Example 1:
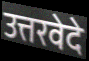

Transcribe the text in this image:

उत्तरवेदे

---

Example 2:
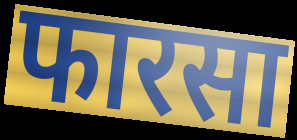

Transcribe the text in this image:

फारसा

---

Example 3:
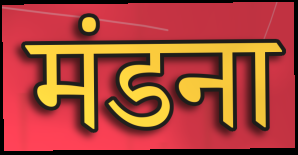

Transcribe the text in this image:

मंडना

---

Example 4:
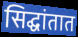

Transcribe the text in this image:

सिद्घांतात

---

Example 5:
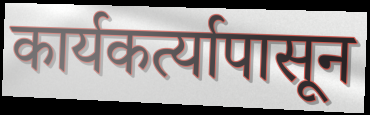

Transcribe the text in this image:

कार्यकर्त्यापासून